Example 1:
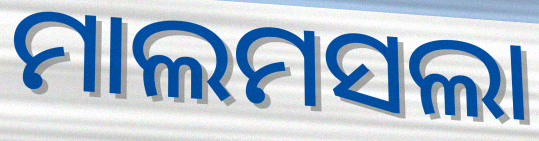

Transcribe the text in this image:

ମାଲମସଲା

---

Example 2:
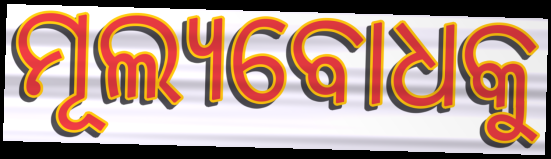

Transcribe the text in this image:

ମୂଲ୍ୟବୋଧକୁ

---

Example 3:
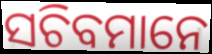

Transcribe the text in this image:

ସଚିବମାନେ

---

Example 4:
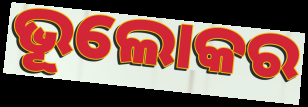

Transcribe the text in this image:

ଭୂଲୋକର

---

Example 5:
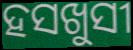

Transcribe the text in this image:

ହସଖୁସୀ